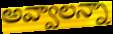
అవ్వాలన్నా